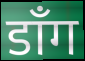
डाँग